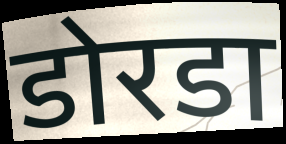
डोरडा